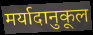
मर्यादानुकूल